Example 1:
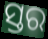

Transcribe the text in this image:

ସ୍ତର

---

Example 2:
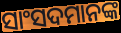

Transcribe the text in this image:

ସାଂସଦମାନଙ୍କ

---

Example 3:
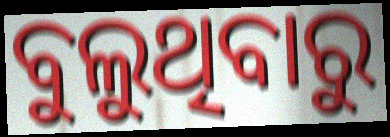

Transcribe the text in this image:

ବୁଲୁଥିବାରୁ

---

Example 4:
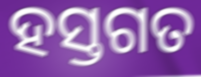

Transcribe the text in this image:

ହସ୍ତଗତ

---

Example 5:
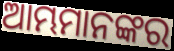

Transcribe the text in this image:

ଆମ୍ଭମାନଙ୍କର